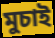
মুচাই